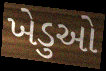
ખેડુઓ